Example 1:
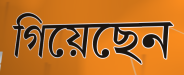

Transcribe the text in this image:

গিয়েছেন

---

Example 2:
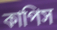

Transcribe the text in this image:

কাপিস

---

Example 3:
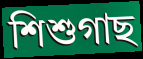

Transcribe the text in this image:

শিশুগাছ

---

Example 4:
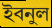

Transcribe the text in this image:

ইবনুল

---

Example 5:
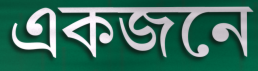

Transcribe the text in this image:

একজনে